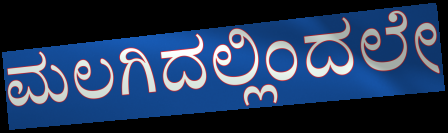
ಮಲಗಿದಲ್ಲಿಂದಲೇ